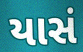
યાસં